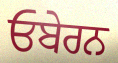
ਓਬੇਰਨ